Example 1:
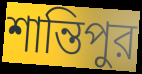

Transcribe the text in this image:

শান্তিপুর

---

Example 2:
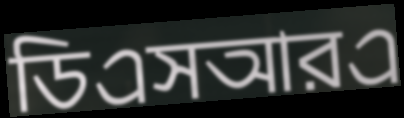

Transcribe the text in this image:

ডিএসআরএ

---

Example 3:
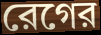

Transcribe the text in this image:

রেগের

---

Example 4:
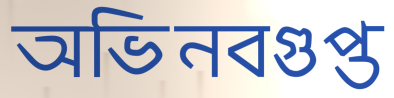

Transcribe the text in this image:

অভিনবগুপ্ত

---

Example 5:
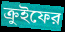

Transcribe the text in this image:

ক্রুইফের